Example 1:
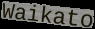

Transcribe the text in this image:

Waikato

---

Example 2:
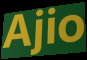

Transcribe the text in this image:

Ajio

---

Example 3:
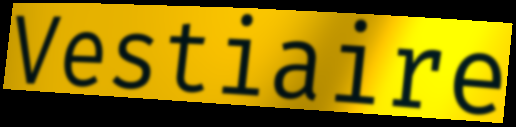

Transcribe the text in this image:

Vestiaire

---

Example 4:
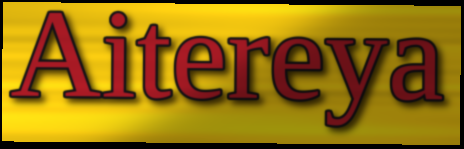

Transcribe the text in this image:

Aitereya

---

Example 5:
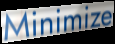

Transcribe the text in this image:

Minimize